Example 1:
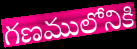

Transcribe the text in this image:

గణములోనికి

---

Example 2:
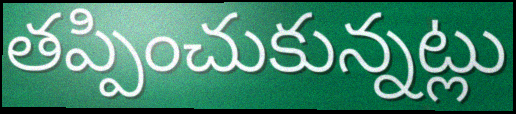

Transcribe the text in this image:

తప్పించుకున్నట్లు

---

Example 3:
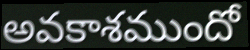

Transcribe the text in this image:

అవకాశముందో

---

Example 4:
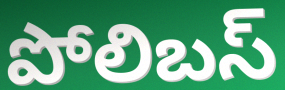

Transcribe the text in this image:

పోలిబస్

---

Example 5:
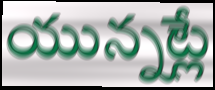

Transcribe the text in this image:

యున్నట్లే